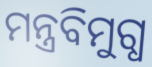
ମନ୍ତ୍ରବିମୁଗ୍ଧ